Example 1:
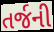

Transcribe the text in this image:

તર્જની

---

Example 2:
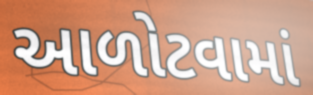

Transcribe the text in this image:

આળોટવામાં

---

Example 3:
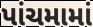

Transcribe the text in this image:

પાંચમામાં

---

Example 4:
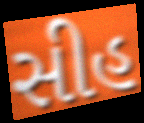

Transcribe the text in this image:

સીહ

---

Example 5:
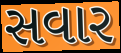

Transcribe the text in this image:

સવાર